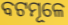
ବଟମୂଳେ